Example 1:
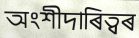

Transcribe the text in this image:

অংশীদাৰিত্বৰ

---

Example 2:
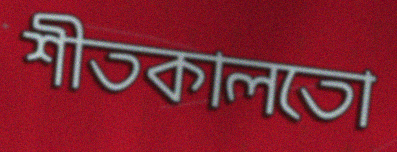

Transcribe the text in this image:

শীতকালতো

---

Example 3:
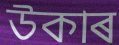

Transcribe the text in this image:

উকাৰ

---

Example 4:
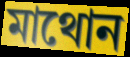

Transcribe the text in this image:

মাথোন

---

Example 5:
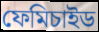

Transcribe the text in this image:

ফেমিচাইড